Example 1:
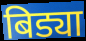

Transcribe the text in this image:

बिड्या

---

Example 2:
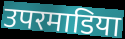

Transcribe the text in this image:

उपरमाडिया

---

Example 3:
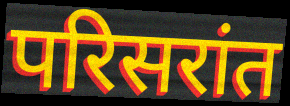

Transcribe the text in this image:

परिसरांत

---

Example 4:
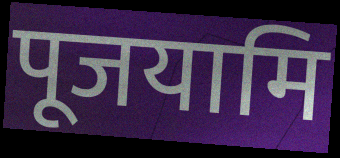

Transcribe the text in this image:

पूजयामि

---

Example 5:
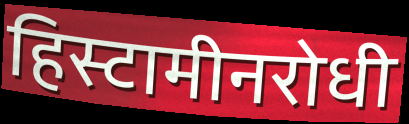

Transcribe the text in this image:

हिस्टामीनरोधी